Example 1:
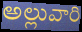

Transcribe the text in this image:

అల్లువారి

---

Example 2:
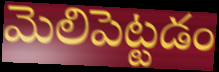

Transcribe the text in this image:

మెలిపెట్టడం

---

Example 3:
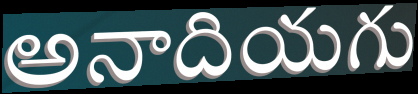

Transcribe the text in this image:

అనాదియగు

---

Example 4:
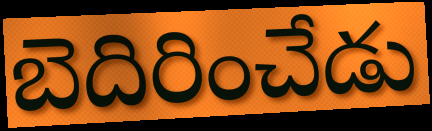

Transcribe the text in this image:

బెదిరించేడు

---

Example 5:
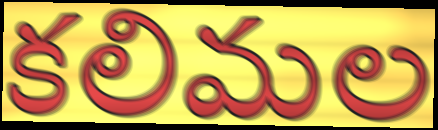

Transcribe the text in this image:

కలిమల